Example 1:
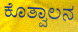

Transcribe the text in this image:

ಕೊತ್ವಾಲನ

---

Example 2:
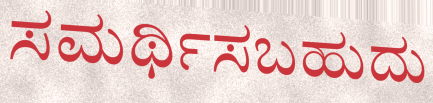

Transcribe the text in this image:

ಸಮರ್ಥಿಸಬಹುದು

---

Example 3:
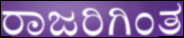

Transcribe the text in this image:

ರಾಜರಿಗಿಂತ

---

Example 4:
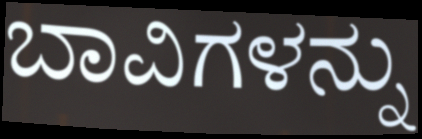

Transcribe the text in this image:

ಬಾವಿಗಳನ್ನು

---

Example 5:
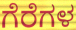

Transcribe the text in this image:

ಗೆರೆಗಳ